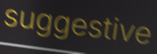
suggestive